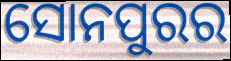
ସୋନପୁରର